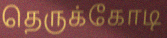
தெருக்கோடி